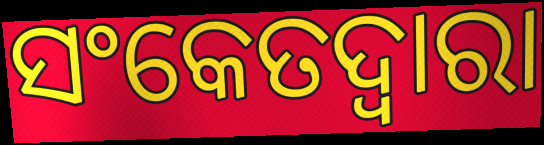
ସଂକେତଦ୍ଵାରା